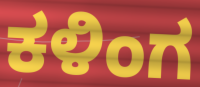
ಕಳಿಂಗ